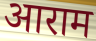
आराम